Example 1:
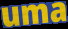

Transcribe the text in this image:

uma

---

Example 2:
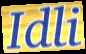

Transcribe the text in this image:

Idli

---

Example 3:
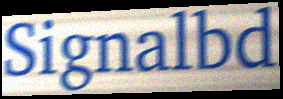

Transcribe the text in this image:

Signalbd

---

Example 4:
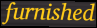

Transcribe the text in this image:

furnished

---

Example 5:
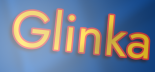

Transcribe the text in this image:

Glinka